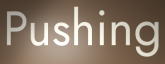
Pushing